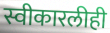
स्वीकारलीही